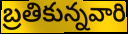
బ్రతికున్నవారి